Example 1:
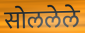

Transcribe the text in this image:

सोललेले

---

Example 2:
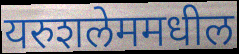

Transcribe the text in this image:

यरुशलेममधील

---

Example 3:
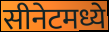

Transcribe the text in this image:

सीनेटमध्ये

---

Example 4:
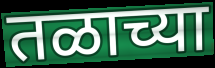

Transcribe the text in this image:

तळाच्या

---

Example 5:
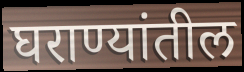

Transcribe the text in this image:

घराण्यांतील